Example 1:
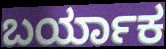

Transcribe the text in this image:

ಬರ್ಯಾಕ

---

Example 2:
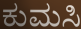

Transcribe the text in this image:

ಕುಮಸಿ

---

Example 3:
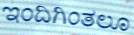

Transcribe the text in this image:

ಇಂದಿಗಿಂತಲೂ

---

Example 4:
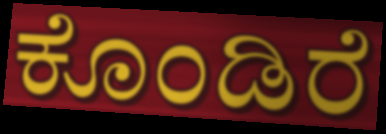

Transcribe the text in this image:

ಕೊಂಡಿರೆ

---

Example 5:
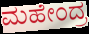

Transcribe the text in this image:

ಮಹೇಂದ್ರ